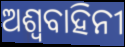
ଅଶ୍ୱବାହିନୀ